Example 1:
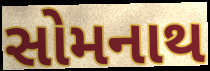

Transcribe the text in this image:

સોમનાથ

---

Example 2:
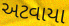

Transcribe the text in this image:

અટવાયા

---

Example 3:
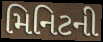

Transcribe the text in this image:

મિનિટની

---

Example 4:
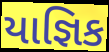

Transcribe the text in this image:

યાજ્ઞિક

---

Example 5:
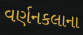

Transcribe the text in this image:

વર્ણનકલાના